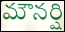
మౌనర్షి